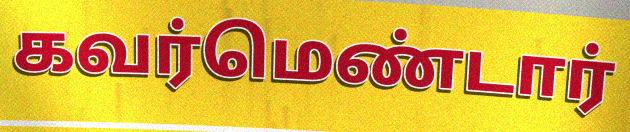
கவர்மெண்டார்